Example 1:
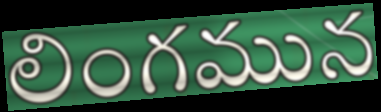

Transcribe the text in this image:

లింగమున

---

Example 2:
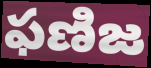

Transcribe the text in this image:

ఫణిజ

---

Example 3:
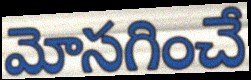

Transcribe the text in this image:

మోసగించే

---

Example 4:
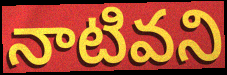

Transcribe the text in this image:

నాటివని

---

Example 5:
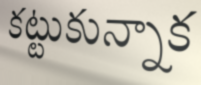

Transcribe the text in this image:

కట్టుకున్నాక